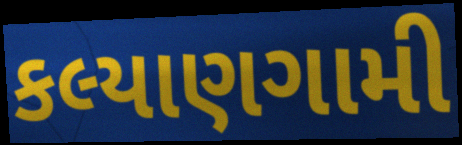
કલ્યાણગામી